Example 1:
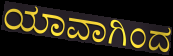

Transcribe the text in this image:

ಯಾವಾಗಿಂದ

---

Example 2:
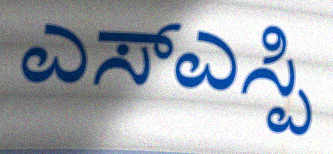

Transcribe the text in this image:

ಎಸ್ಎಸ್ಪಿ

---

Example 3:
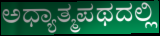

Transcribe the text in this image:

ಅಧ್ಯಾತ್ಮಪಥದಲ್ಲಿ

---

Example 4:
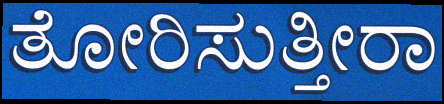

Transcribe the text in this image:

ತೋರಿಸುತ್ತೀರಾ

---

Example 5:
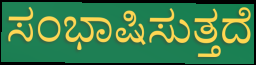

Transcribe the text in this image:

ಸಂಭಾಷಿಸುತ್ತದೆ